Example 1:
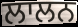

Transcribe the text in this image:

ਲਾਲਨ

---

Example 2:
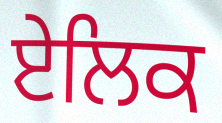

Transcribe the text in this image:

ਏਲਿਕ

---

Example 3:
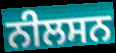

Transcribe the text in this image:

ਨੀਲਸਨ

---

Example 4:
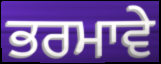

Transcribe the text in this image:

ਭਰਮਾਵੇ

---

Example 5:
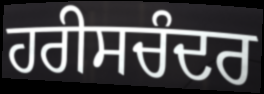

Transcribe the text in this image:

ਹਰੀਸਚੰਦਰ